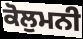
ਕੋਲੁਮਨੀ